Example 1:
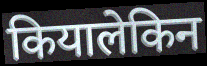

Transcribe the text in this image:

कियालेकिन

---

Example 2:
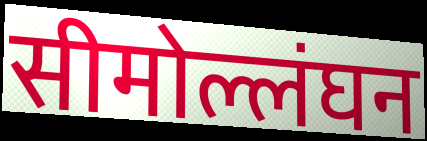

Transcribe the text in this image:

सीमोल्लंघन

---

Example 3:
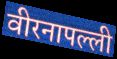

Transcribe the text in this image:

वीरनापल्ली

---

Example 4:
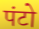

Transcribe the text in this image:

पंटो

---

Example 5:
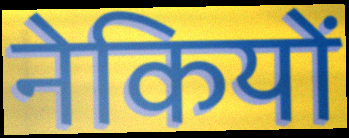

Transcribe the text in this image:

नेकियों